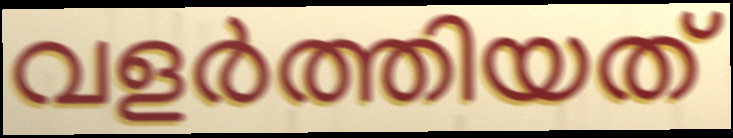
വളർത്തിയത്